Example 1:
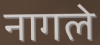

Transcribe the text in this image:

नागले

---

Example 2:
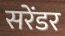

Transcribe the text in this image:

सरेंडर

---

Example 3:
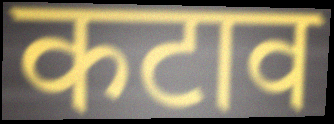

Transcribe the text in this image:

कटाव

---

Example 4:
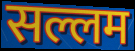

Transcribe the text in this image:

सल्लम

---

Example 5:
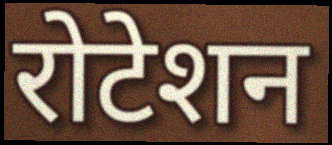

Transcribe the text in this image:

रोटेशन